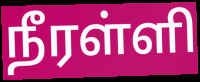
நீரள்ளி